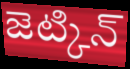
జెట్కిన్